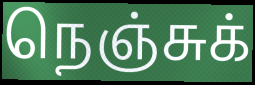
நெஞ்சுக்